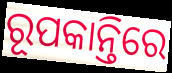
ରୂପକାନ୍ତିରେ